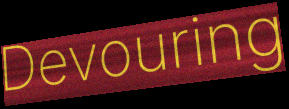
Devouring